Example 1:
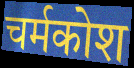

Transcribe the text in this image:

चर्मकोश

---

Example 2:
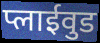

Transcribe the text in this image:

प्लाईवुड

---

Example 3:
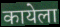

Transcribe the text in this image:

कायेला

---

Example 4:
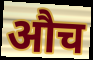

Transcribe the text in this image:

औच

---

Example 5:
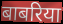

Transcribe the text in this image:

बाबरिया